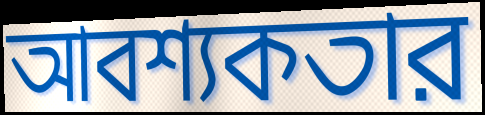
আবশ্যকতার